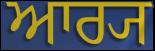
ਆਰ੍ਯ